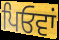
ਪਿਓਵਾਂ